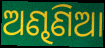
ଅଣ୍ଢଣିଆ